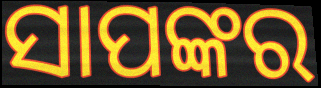
ସାପଙ୍କର